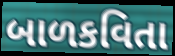
બાળકવિતા